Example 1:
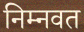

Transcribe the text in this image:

निम्नवत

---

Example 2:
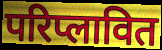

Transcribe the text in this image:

परिप्लावित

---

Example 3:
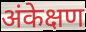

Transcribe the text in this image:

अंकेक्षण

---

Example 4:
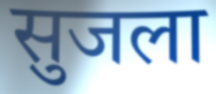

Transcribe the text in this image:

सुजला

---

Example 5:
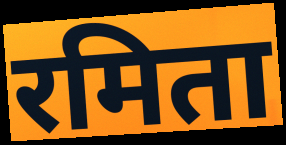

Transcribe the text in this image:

रमिता